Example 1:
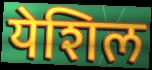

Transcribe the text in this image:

येशिल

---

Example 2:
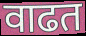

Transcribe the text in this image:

वाढत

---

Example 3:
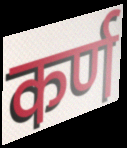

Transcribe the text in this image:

कर्ण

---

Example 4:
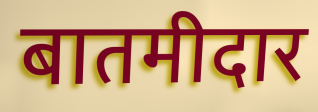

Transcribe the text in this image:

बातमीदार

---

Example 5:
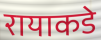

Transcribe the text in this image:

रायाकडे